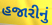
હજારીનું